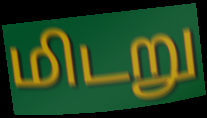
மிடறு